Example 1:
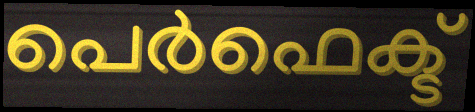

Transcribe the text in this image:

പെർഫെക്ട്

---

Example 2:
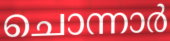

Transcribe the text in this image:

ചൊന്നാർ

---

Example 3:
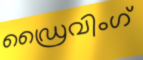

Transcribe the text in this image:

ഡ്രൈവിംഗ്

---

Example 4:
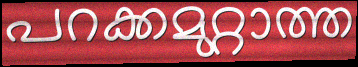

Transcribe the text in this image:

പറക്കമുറ്റാത്ത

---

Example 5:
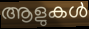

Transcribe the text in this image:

ആളുകൾ